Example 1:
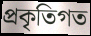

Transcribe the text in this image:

প্রকৃতিগত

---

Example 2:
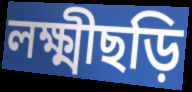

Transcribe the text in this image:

লক্ষ্মীছড়ি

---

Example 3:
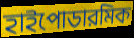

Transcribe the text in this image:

হাইপোডারমিক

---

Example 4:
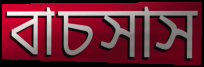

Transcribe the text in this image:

বাচসাস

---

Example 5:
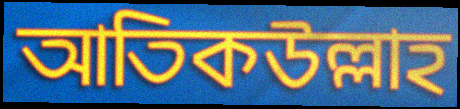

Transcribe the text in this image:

আতিকউল্লাহ